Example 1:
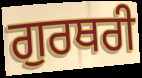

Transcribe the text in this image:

ਗੁਰਥਰੀ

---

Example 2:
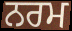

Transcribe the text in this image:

ਨਰਮ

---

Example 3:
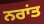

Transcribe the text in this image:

ਨਰਾਂਤ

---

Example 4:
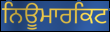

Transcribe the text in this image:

ਨਿਊਮਾਰਕਿਟ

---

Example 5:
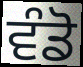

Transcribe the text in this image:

ਵੰਡੋ